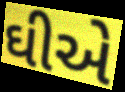
ઘીએ